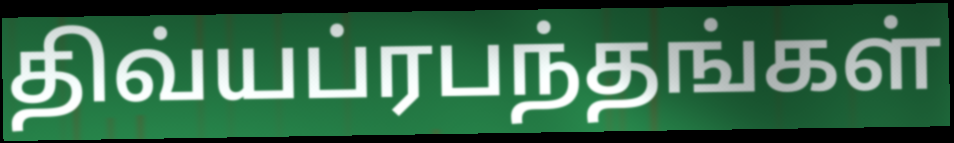
திவ்யப்ரபந்தங்கள்